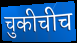
चुकीचीच